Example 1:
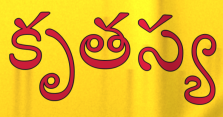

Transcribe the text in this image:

కృతస్య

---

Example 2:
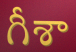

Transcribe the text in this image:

గీశా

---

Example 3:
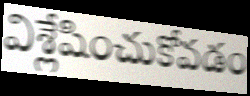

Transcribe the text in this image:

విశ్లేషించుకోవడం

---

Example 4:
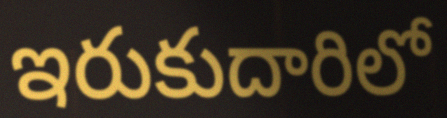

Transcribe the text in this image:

ఇరుకుదారిలో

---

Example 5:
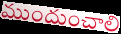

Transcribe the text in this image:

ముందుంచాలి